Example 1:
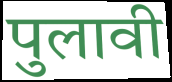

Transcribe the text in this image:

पुलावी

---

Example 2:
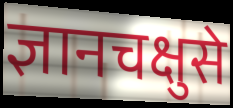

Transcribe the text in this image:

ज्ञानचक्षुसे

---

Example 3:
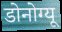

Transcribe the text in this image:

डोनोग्यू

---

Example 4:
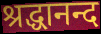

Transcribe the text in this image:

श्रद्धानन्द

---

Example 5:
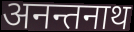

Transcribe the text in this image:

अनन्तनाथ